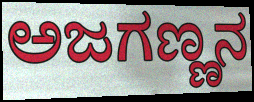
ಅಜಗಣ್ಣನ